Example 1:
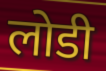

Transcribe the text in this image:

लोडी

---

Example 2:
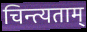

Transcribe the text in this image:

चिन्त्यताम्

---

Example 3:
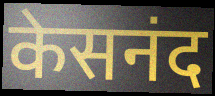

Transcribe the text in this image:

केसनंद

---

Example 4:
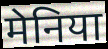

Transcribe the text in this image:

मेनिया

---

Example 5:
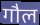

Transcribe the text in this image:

गौल